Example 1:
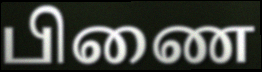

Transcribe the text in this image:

பிணை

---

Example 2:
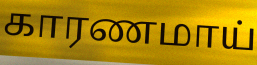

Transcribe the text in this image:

காரணமாய்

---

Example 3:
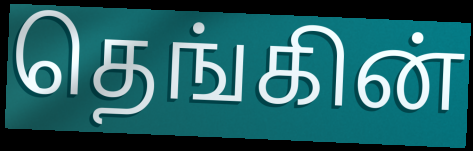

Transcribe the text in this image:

தெங்கின்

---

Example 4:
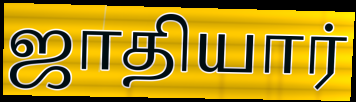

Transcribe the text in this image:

ஜாதியார்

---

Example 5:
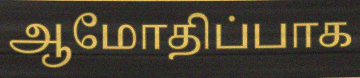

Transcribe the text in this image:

ஆமோதிப்பாக